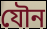
যৌন